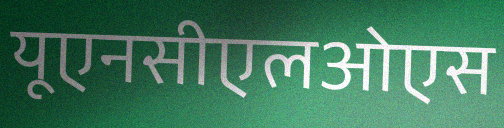
यूएनसीएलओएस